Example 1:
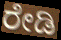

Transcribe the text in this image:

ರೇಡಿ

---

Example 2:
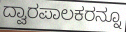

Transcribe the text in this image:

ದ್ವಾರಪಾಲಕರನ್ನೂ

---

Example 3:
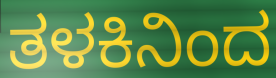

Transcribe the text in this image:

ತಳಕಿನಿಂದ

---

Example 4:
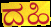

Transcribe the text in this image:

ದಹಿ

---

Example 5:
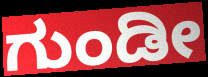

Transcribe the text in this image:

ಗುಂಡೀ